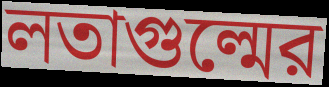
লতাগুল্মের